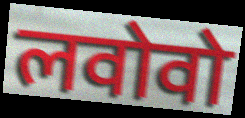
लवोवो